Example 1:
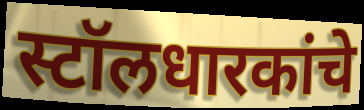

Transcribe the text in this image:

स्टॉलधारकांचे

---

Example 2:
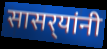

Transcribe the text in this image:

सासर्‍यांनी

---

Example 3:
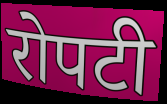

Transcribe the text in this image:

रोपटी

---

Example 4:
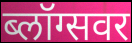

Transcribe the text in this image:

ब्लॉग्सवर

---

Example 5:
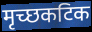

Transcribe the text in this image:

मृच्छकटिक